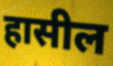
हासील